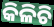
କିଳିଚି